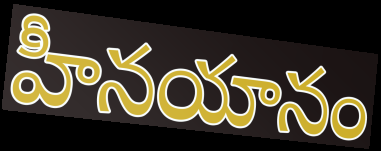
హీనయానం